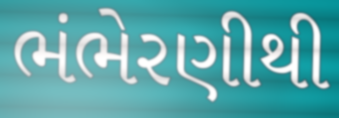
ભંભેરણીથી